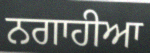
ਨਗਾਹੀਆ